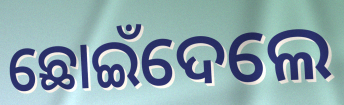
ଛୋଇଁଦେଲେ